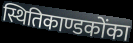
स्थितिकाण्डकोंका